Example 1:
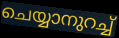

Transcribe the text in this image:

ചെയ്യാനുറച്ച്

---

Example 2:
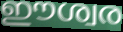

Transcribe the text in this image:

ഈശ്വര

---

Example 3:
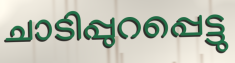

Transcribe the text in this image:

ചാടിപ്പുറപ്പെട്ടു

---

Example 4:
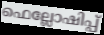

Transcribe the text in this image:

ഫെല്ലോഷിപ്പ്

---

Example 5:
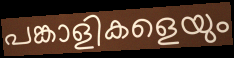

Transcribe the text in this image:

പങ്കാളികളെയും